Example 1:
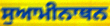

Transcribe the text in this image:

ਸੁਆਮੀਨਾਥਨ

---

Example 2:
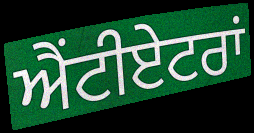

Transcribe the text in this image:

ਐਂਟੀਏਟਰਾਂ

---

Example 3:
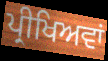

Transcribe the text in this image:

ਪ੍ਰੀਖਿਅਵਾਂ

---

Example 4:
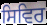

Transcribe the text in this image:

ਸਿਵਿਰ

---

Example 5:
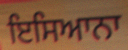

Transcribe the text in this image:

ਇਸਿਆਨਾ